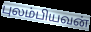
புலம்பியவன்